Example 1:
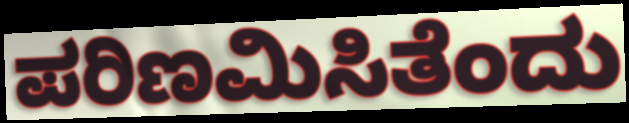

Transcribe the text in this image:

ಪರಿಣಮಿಸಿತೆಂದು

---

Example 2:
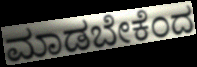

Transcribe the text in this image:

ಮಾಡಬೇಕೆಂದ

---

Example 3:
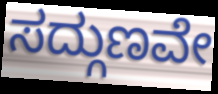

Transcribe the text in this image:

ಸದ್ಗುಣವೇ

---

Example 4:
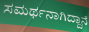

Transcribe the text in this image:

ಸಮರ್ಥನಾಗಿದ್ದಾನೆ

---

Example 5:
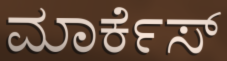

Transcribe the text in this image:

ಮಾರ್ಕೆಸ್